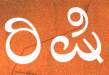
ರಿಷಿ